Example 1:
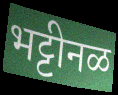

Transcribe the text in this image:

भट्टीनळ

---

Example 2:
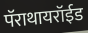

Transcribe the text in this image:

पॅराथायरॉईड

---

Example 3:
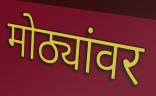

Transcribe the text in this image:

मोठ्यांवर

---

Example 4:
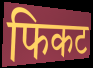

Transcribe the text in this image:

फिकट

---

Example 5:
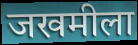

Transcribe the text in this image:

जखमीला